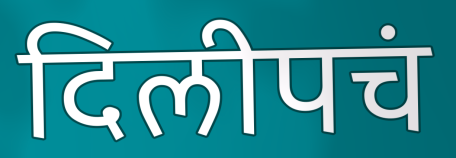
दिलीपचं